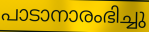
പാടാനാരംഭിച്ചു